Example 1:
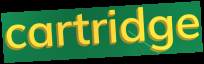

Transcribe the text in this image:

cartridge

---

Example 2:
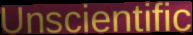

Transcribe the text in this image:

Unscientific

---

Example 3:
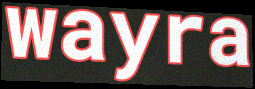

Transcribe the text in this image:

wayra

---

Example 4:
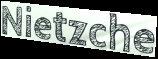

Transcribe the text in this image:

Nietzche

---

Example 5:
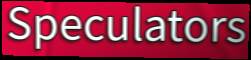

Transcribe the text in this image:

Speculators